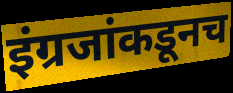
इंग्रजांकडूनच